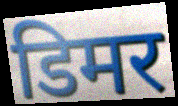
डिमर